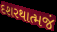
દશરથાત્મજં